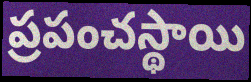
ప్రపంచస్థాయి